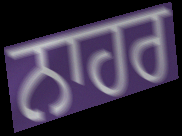
ਨਾਹਰ